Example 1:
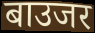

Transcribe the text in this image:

बाउजर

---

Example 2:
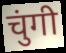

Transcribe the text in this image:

चुंगी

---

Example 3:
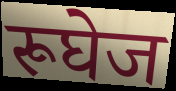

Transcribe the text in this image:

रूघेज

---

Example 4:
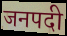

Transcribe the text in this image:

जनपदी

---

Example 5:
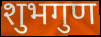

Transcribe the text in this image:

शुभगुण